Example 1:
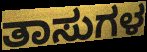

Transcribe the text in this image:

ತಾಸುಗಳ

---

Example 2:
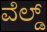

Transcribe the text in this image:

ವೆಲ್ಡ್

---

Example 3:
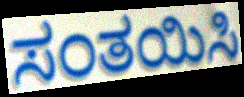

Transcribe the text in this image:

ಸಂತಯಿಸಿ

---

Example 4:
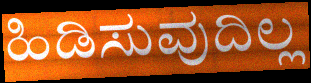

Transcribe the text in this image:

ಹಿಡಿಸುವುದಿಲ್ಲ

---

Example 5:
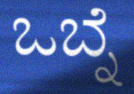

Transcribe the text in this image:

ಒಬ್ನೆ